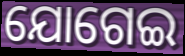
ଯୋଗେଇ